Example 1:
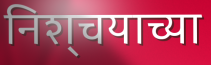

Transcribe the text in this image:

निश्चयाच्या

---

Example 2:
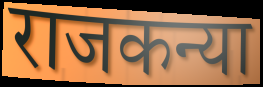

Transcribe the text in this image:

राजकन्या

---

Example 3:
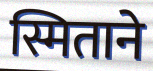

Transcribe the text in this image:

स्मिताने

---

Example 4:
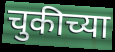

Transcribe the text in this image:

चुकीच्या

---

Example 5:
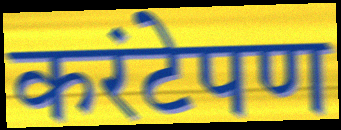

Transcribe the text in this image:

करंटेपण